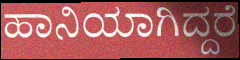
ಹಾನಿಯಾಗಿದ್ದರೆ